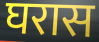
घरास